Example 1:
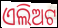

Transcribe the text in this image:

ଏଲିଅଟ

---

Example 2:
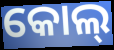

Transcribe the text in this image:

କୋଲ୍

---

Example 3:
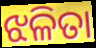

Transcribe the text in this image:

ଝଳିତା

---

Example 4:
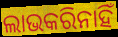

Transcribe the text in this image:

ଲାଭକରିନାହିଁ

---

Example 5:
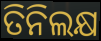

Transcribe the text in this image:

ତିନିଲକ୍ଷ